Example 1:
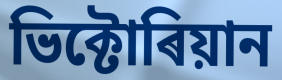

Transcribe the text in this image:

ভিক্টোৰিয়ান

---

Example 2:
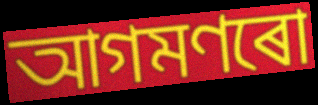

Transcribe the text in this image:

আগমণৰো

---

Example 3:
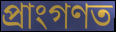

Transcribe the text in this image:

প্ৰাংগণত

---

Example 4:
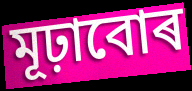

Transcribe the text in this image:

মূঢ়াবোৰ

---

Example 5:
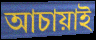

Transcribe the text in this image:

আচায়াই